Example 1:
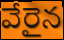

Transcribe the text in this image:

వేరైన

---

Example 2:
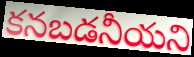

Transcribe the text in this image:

కనబడనీయని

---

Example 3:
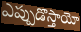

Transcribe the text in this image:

ఎప్పుడొస్తాయో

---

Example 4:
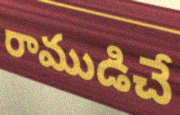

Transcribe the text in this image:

రాముడిచే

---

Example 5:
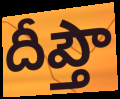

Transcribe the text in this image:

దీప్తౌ